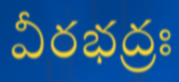
వీరభద్రః